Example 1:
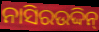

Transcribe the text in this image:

ନାସିରଉଦ୍ଦିନ୍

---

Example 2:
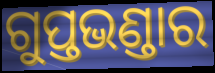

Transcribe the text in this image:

ଗୁପ୍ତଭଣ୍ଡାର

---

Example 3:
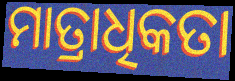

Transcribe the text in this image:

ମାତ୍ରାଧିକତା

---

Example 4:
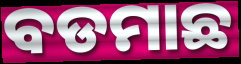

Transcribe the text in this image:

ବଡମାଛ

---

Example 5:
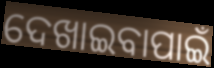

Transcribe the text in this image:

ଦେଖାଇବାପାଇଁ